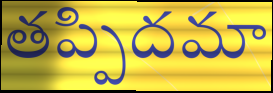
తప్పిదమా